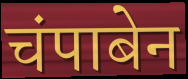
चंपाबेन